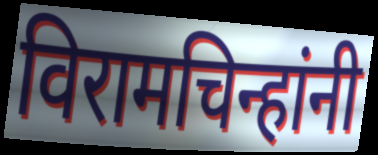
विरामचिन्हांनी